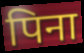
पिना